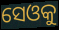
ସେଓକୁ